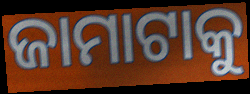
ଜାମାଟାକୁ